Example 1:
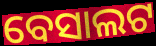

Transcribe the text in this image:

ବେସାଲଟ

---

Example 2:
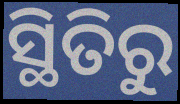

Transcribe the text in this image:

ସ୍ଥିତିରୁ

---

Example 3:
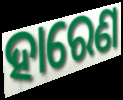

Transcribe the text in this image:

ହାରେଣ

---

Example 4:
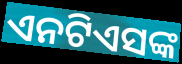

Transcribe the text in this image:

ଏନଟିଏସଙ୍କ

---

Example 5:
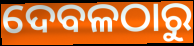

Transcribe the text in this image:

ଦେବଳଠାରୁ